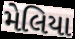
મેલિયા